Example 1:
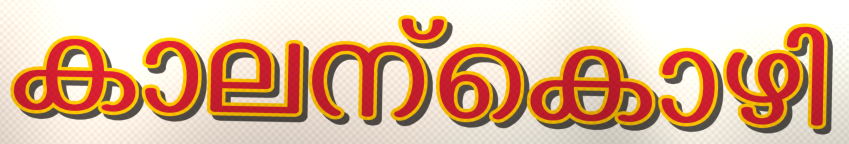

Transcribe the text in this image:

കാലന്കൊഴി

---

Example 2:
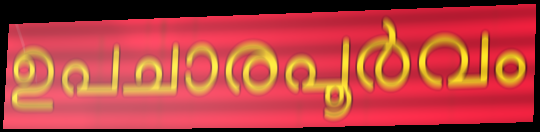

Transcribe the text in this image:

ഉപചാരപൂർവം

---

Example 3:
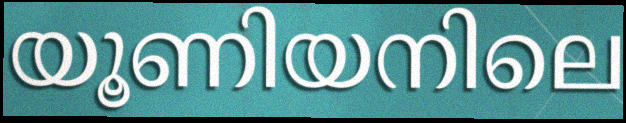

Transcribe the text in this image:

യൂണിയനിലെ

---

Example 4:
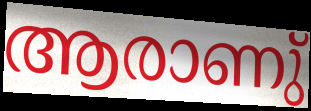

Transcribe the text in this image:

ആരാണു്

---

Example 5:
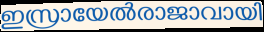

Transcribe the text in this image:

ഇസ്രായേൽരാജാവായി